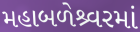
મહાબળેશ્ર્વરમાં